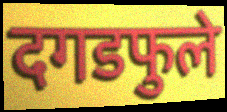
दगडफुले